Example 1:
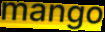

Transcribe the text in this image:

mango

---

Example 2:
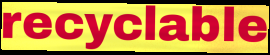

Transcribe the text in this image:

recyclable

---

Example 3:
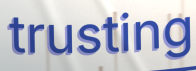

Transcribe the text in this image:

trusting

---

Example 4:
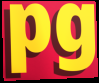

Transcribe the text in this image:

pg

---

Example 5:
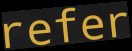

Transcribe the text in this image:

refer